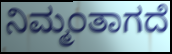
ನಿಮ್ಮಂತಾಗದೆ